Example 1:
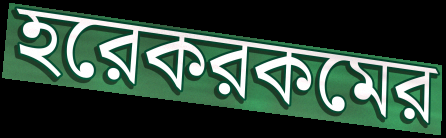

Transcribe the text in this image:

হরেকরকমের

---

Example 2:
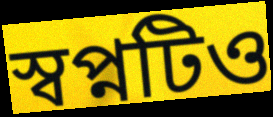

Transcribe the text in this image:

স্বপ্নটিও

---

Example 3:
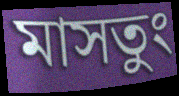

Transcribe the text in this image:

মাসতুং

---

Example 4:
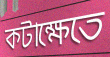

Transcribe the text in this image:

কটাক্ষেতে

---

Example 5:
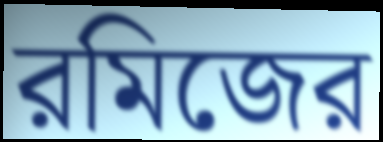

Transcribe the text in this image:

রমিজের